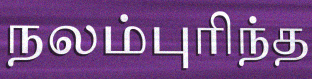
நலம்புரிந்த